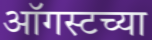
ऑगस्टच्या